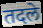
तदले